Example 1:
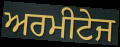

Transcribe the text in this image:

ਅਰਮੀਟੇਜ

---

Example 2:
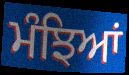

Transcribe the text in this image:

ਮੰਝਿਆਂ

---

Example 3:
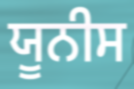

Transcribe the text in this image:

ਯੂਨੀਸ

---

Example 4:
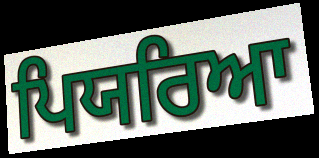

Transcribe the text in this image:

ਪਿਯਰਿਆ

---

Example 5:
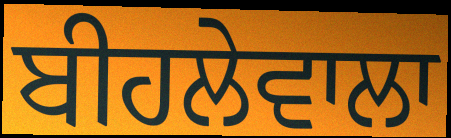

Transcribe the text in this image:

ਬੀਹਲੇਵਾਲਾ